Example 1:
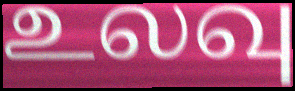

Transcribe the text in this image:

உலவு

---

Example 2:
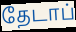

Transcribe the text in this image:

தேடாப்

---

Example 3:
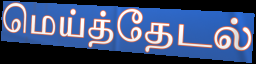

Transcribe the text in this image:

மெய்த்தேடல்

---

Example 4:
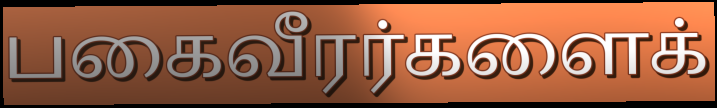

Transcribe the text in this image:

பகைவீரர்களைக்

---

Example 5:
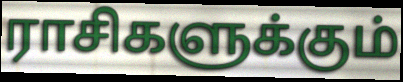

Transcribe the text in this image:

ராசிகளுக்கும்